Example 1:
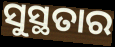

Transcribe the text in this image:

ସୁସ୍ଥତାର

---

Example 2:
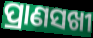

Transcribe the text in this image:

ପ୍ରାଣସଖୀ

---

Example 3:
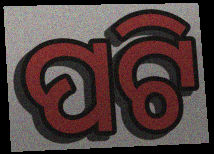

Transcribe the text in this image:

ପଟି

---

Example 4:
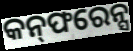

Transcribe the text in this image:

କନ୍‌ଫରେନ୍ସ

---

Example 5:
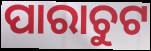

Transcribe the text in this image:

ପାରାଚୁଟ